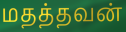
மதத்தவன்